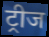
ट्रीज